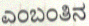
ಎಂಬಂತಿನ